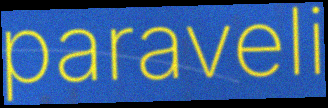
paraveli